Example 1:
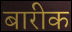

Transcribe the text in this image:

बारीक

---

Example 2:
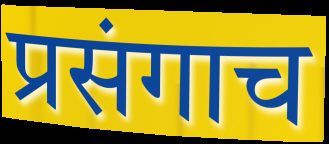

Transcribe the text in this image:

प्रसंगाच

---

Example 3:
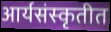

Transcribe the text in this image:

आर्यसंस्कृतीत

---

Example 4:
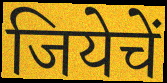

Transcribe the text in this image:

जियेचें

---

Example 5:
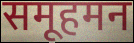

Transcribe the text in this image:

समूहमन